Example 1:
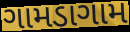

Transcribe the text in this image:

ગામડાગામ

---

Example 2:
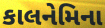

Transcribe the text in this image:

કાલનેમિના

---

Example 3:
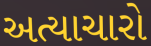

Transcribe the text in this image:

અત્યાચારો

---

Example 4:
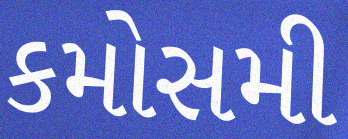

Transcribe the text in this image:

કમોસમી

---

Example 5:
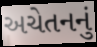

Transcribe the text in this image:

અચેતનનું